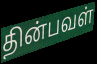
தின்பவள்